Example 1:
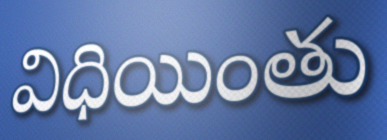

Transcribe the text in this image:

విధియింతు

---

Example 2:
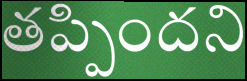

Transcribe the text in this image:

తప్పిందని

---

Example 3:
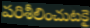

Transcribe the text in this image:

పరిశీలించుటకై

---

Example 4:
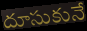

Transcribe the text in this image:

దూసుకునే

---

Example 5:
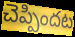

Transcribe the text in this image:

చెప్పిందట